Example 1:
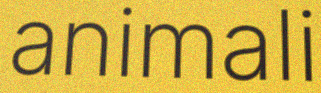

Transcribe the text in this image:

animali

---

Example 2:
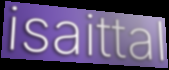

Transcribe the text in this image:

isaittal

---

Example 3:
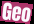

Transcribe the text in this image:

Geo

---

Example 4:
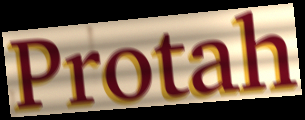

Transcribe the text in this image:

Protah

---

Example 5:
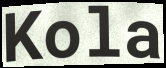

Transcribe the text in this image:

Kola